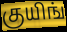
குயிங்